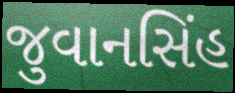
જુવાનસિંહ